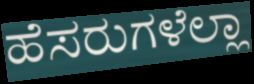
ಹೆಸರುಗಳೆಲ್ಲಾ